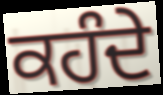
ਕਹੰਦੇ